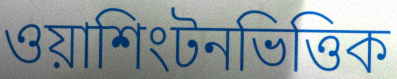
ওয়াশিংটনভিত্তিক